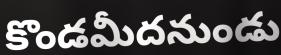
కొండమీదనుండు